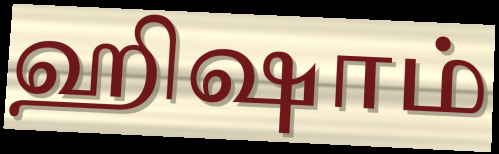
ஹிஷாம்